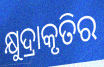
କ୍ଷୁଦ୍ରାକୃତିର